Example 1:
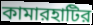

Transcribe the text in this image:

কামারহাটির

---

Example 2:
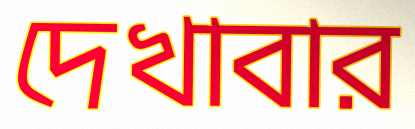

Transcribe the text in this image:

দেখাবার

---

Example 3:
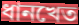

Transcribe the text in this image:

ধানখেত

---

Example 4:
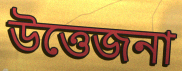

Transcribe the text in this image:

উত্তেজনা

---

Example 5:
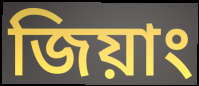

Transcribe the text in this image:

জিয়াং